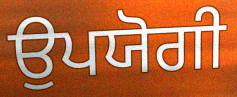
ਉਪਯੋਗੀ